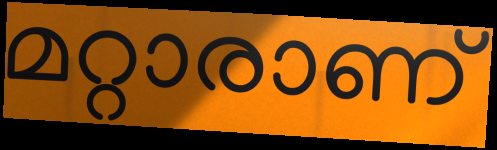
മറ്റാരാണ്